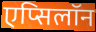
एप्सिलॉन